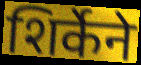
शिर्केने